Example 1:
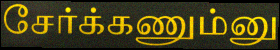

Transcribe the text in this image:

சேர்க்கணும்னு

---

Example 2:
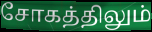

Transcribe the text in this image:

சோகத்திலும்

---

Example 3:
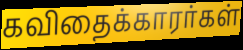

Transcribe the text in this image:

கவிதைக்காரர்கள்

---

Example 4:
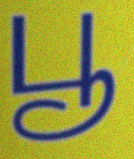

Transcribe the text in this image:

பூ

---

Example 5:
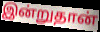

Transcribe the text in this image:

இன்றுதான்